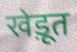
खेड़ूत